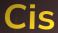
Cis